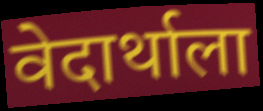
वेदार्थाला